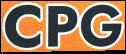
CPG